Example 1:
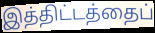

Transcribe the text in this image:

இத்திட்டத்தைப்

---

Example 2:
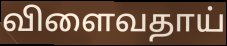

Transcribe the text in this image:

விளைவதாய்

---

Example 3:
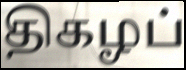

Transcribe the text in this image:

திகழப்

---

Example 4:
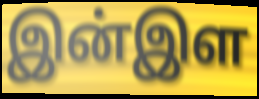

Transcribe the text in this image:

இன்இள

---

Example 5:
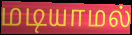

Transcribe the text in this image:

மடியாமல்